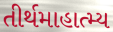
તીર્થમાહાત્મ્ય